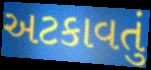
અટકાવતું